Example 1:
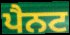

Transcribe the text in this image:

ਪੈਨਟ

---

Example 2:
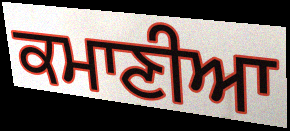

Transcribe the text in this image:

ਕਮਾਣੀਆ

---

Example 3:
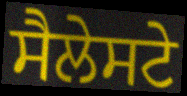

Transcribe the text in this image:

ਸੈਲੇਸਟੇ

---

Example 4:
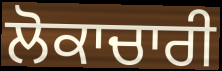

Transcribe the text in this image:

ਲੋਕਾਚਾਰੀ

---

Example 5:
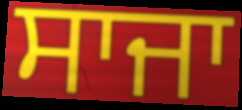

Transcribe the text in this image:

ਸਾਜਾ